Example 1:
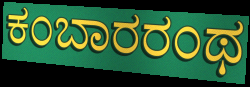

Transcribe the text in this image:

ಕಂಬಾರರಂಥ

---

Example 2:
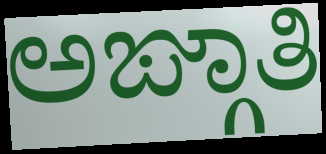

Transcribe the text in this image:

ಅಙ್ಗಾತಿ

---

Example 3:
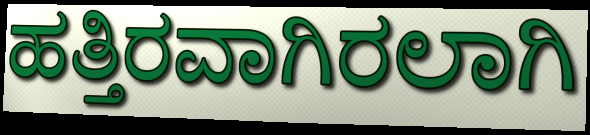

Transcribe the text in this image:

ಹತ್ತಿರವಾಗಿರಲಾಗಿ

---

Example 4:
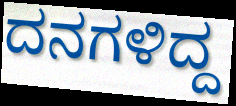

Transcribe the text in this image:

ದನಗಳಿದ್ದ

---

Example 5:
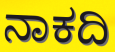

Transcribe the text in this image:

ನಾಕದಿ